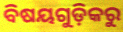
ବିଷୟଗୁଡ଼ିକରୁ